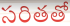
సరితతో